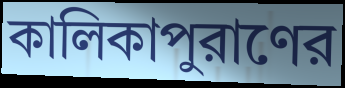
কালিকাপুরাণের